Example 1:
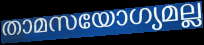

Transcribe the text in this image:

താമസയോഗ്യമല്ല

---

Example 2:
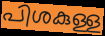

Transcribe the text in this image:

പിശകുള്ള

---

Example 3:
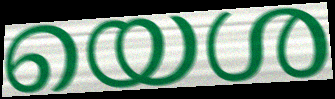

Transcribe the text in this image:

യെശ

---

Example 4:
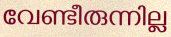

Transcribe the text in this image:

വേണ്ടീരുന്നില്ല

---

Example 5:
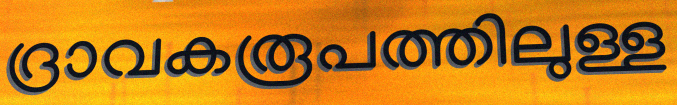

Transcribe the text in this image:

ദ്രാവകരൂപത്തിലുള്ള